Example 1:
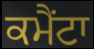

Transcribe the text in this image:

ਕਮੈਂਟਾ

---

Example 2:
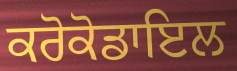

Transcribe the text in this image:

ਕਰੋਕੋਡਾਇਲ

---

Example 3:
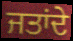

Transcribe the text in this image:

ਜਤਾਂਦੇ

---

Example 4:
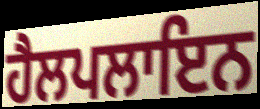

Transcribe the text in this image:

ਹੈਲਪਲਾਇਨ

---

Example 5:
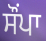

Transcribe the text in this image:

ਸੌਂਪਾ